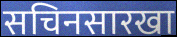
सचिनसारखा